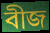
বীজ